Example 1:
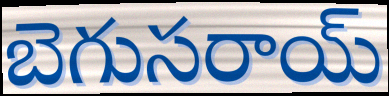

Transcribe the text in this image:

బెగుసరాయ్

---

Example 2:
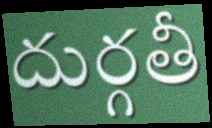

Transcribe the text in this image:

దుర్గతీ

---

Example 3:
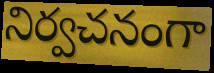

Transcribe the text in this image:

నిర్వచనంగా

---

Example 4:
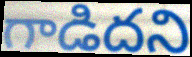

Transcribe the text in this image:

గాడిదని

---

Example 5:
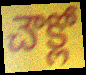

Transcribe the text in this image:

చౌక్లో